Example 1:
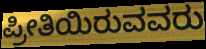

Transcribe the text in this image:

ಪ್ರೀತಿಯಿರುವವರು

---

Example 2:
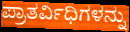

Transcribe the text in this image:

ಪ್ರಾತರ್ವಿಧಿಗಳನ್ನು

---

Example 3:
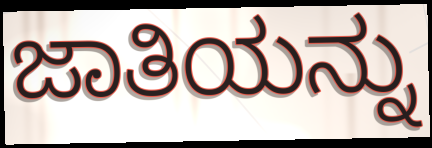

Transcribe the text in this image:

ಜಾತಿಯನ್ನು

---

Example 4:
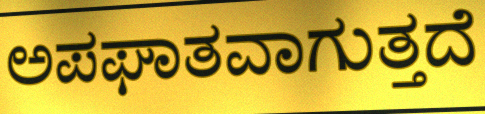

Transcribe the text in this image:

ಅಪಘಾತವಾಗುತ್ತದೆ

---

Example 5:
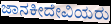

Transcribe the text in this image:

ಜಾನಕೀದೇವಿಯರು